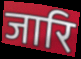
जारि